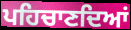
ਪਹਿਚਾਣਦਿਆਂ